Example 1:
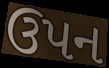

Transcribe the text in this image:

ઉપન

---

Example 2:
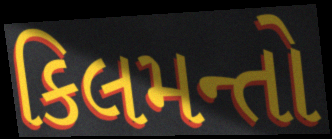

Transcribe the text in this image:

કિલમન્તો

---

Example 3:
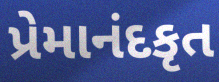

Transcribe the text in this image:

પ્રેમાનંદકૃત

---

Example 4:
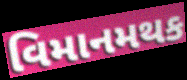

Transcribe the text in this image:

વિમાનમથક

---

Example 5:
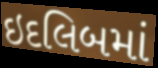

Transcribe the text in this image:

ઇદલિબમાં